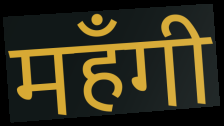
महँगी